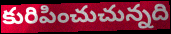
కురిపించుచున్నది